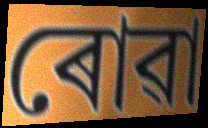
ৰোৱা